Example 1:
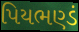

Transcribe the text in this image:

પિયભણ્ડં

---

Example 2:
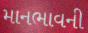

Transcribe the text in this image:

માનભાવની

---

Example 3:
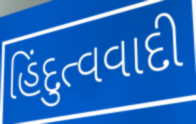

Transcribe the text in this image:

હિંદુત્વવાદી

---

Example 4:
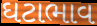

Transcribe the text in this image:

ઘટાભાવ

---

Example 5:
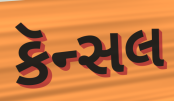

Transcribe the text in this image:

કૅન્સલ